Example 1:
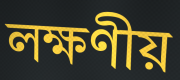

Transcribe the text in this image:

লক্ষণীয়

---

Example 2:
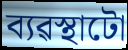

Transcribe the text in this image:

ব্যৱস্থাটো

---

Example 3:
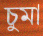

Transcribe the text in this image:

চুমা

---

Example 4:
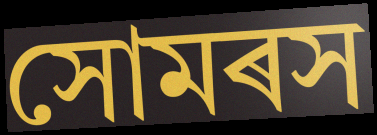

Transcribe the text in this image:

সোমৰস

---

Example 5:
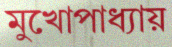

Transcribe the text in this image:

মুখোপাধ্যায়